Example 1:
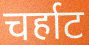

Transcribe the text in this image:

चर्हाट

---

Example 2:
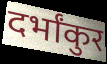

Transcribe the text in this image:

दर्भांकुर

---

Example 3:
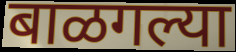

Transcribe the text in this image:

बाळगल्या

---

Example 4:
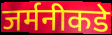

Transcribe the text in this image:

जर्मनीकडे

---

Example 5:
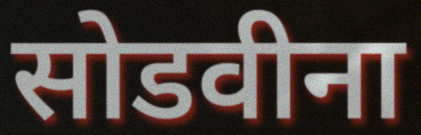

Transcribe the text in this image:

सोडवीना